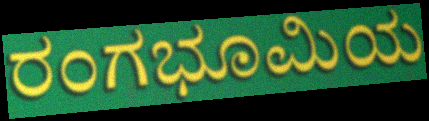
ರಂಗಭೂಮಿಯ